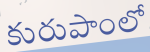
కురుపాంలో